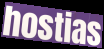
hostias